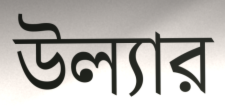
উল্যার